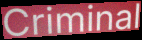
Criminal